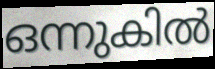
ഒന്നുകിൽ